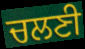
ਚਲਣੀ